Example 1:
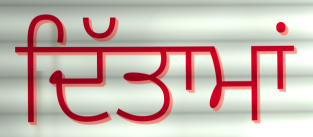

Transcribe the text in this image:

ਦਿੱਤਾਮਾਂ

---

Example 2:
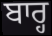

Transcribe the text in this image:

ਬਾਰ੍ਹ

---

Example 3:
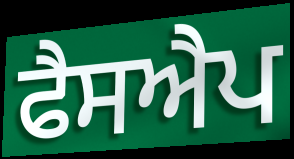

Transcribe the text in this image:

ਫੈਸਐਪ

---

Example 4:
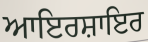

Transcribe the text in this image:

ਆਇਰਸ਼ਾਇਰ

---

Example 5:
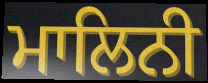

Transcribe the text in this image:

ਮਾਲਿਨੀ